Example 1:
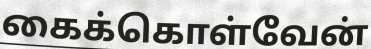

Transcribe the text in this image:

கைக்கொள்வேன்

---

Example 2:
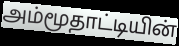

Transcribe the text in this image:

அம்மூதாட்டியின்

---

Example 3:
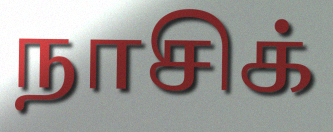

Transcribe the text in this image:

நாசிக்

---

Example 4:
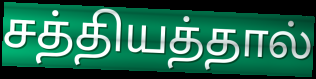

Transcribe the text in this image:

சத்தியத்தால்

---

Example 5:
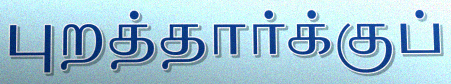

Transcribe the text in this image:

புறத்தார்க்குப்